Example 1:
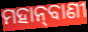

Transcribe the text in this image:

ମହାନ୍‌ବାଣୀ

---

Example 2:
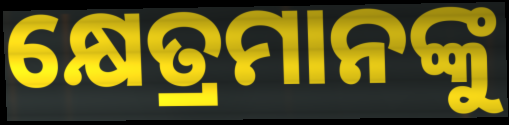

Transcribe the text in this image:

କ୍ଷେତ୍ରମାନଙ୍କୁ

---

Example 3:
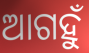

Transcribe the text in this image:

ଆଗହୁଁ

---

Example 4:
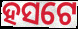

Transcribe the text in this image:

ହସଟେ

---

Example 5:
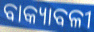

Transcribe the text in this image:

ବାକ୍ୟାବଳୀ